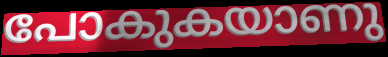
പോകുകയാണു